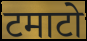
टमाटो